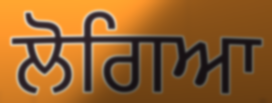
ਲੋਗਿਆ